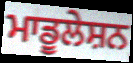
ਮਾਡੂਲੇਸ਼ਨ